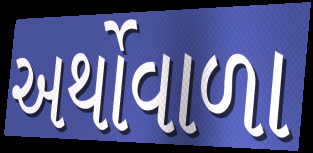
અર્થોવાળા